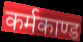
कर्मकाण्ड